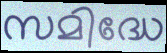
സമിദ്ധേ